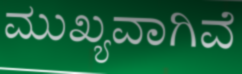
ಮುಖ್ಯವಾಗಿವೆ